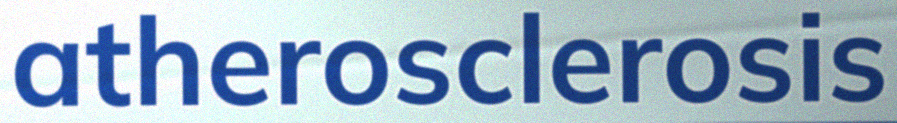
atherosclerosis